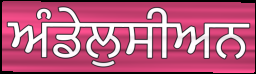
ਅੰਡੇਲੁਸੀਅਨ